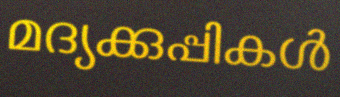
മദ്യക്കുപ്പികൾ